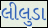
લીલુડા